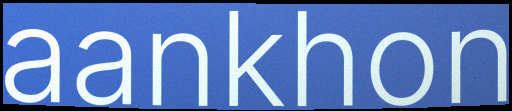
aankhon